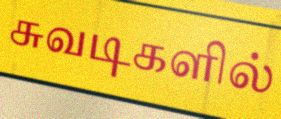
சுவடிகளில்